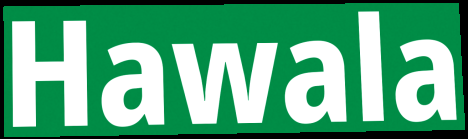
Hawala